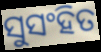
ସୁସଂହିତ